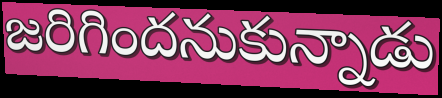
జరిగిందనుకున్నాడు